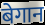
बेगान